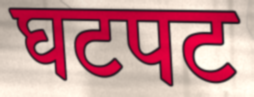
घटपट